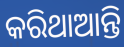
କରିଥାଆନ୍ତି